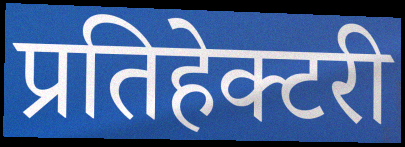
प्रतिहेक्टरी